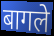
बागले